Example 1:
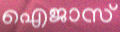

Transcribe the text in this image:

ഐജാസ്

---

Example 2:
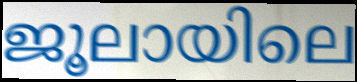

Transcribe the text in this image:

ജൂലായിലെ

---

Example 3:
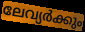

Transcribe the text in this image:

ലേവ്യർക്കും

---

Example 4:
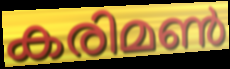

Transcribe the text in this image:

കരിമൺ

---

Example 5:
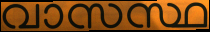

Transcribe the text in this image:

വാസസ്ഥ